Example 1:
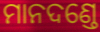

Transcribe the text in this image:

ମାନଦଣ୍ଡେ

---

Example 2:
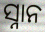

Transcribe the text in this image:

ସ୍ନାନ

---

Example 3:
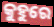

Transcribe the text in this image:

କୁହୁରେ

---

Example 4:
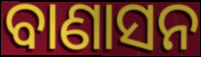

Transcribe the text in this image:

ବାଣାସନ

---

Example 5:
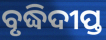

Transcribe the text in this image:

ବୃଦ୍ଧିଦୀପ୍ତ